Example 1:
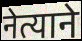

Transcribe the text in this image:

नेत्याने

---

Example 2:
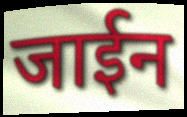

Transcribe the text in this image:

जाईन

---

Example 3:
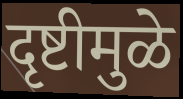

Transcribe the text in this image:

दृष्टीमुळे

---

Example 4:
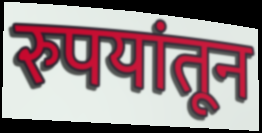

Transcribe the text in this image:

रुपयांतून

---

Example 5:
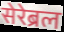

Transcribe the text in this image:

सेरेब्रल